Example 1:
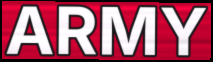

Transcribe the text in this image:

ARMY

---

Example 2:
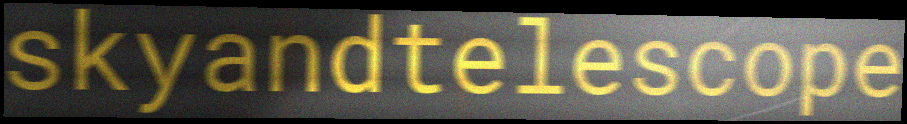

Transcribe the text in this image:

skyandtelescope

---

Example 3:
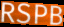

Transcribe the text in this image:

RSPB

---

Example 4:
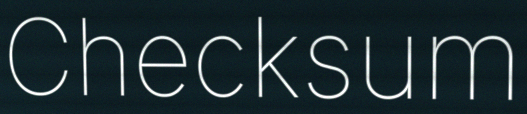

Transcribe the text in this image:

Checksum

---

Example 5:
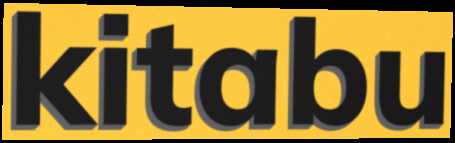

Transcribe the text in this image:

kitabu